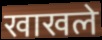
खाखले